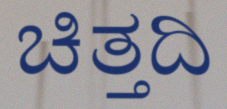
ಚಿತ್ತದಿ